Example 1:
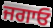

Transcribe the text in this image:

ਜਗਾਓ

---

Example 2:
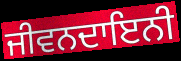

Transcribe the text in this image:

ਜੀਵਨਦਾਇਨੀ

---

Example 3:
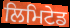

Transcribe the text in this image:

ਲਿਮਿਟੇਡ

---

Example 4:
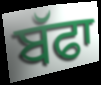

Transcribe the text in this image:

ਬੱਫਾ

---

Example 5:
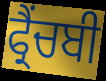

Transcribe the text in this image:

ਫ੍ਰੈਂਚਬੀ